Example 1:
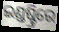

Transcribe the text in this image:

ଇଣ୍ଡଷ୍ଟ୍ରିରେ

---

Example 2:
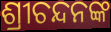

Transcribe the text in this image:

ଶ୍ରୀଚନ୍ଦନଙ୍କ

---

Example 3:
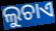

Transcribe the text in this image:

ଲୁଚାଏ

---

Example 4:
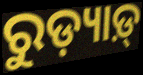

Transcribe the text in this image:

ରୁଡ଼୍ୟାଡ଼୍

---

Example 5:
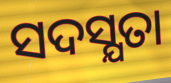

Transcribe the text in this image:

ସଦସ୍ଯତା